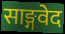
साङ्गवेद